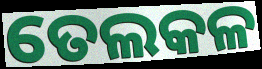
ତେଲକଳ